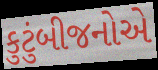
કુટુંબીજનોએ